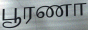
பூரணா